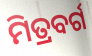
ମିତ୍ରବର୍ଗ